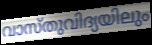
വാസ്തുവിദ്യയിലും